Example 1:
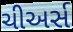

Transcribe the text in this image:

ચીઅર્સ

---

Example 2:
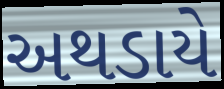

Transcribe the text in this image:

અથડાયે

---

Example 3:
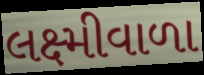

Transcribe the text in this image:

લક્ષ્મીવાળા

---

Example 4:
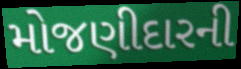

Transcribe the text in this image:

મોજણીદારની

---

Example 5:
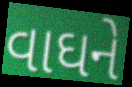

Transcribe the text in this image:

વાઘને